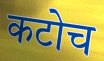
कटोच